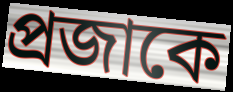
প্রজাকে